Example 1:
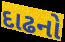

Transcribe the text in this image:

દાઢનો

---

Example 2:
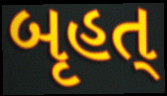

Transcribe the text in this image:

બૃહત્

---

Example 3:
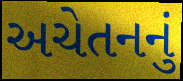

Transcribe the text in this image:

અચેતનનું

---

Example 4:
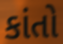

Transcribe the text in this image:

કાંતો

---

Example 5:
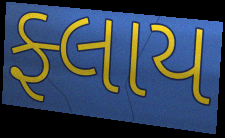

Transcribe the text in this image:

ફ્લાય